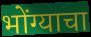
भोंग्याचा